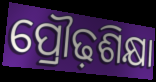
ପ୍ରୌଢ଼ଶିକ୍ଷା